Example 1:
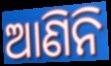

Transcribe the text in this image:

ଆଣିନି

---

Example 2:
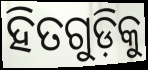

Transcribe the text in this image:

ହିତଗୁଡ଼ିକୁ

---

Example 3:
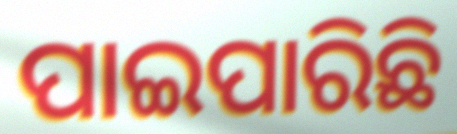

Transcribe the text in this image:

ପାଇପାରିଛି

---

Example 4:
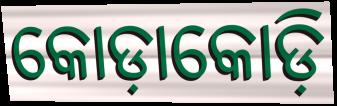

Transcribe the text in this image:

କୋଡ଼ାକୋଡ଼ି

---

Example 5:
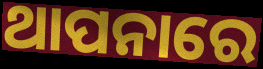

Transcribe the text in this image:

ଥାପନାରେ